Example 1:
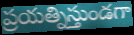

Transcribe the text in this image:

ప్రయత్నిస్తుండగా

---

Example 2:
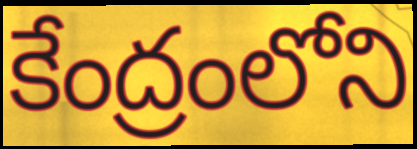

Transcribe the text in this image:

కేంద్రంలోని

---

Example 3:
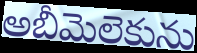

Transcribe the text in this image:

అబీమెలెకును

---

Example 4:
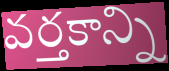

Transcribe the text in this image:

వర్తకాన్ని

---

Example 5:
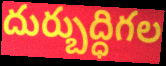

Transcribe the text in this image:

దుర్బుద్ధిగల